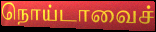
நொய்டாவைச்